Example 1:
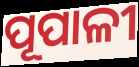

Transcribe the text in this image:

ପୂପାଳୀ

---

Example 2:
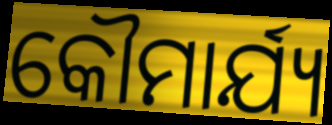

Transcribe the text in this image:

କୌମାର୍ଯ୍ୟ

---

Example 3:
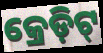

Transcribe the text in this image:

କ୍ରେଡ଼ିଟ୍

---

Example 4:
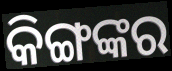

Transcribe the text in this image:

କିଙ୍ଗଙ୍କର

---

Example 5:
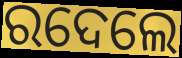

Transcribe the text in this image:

ରଦେଲେ